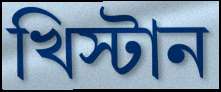
খিস্টান